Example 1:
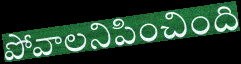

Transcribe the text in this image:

పోవాలనిపించింది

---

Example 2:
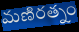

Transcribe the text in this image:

మణిరత్నం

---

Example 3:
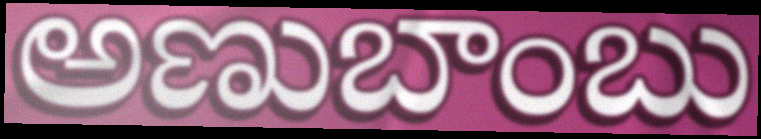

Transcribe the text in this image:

అణుబాంబు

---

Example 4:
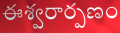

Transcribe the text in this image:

ఈశ్వరార్పణం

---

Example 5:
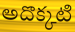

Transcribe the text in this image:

అదొక్కటి